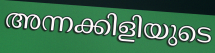
അന്നക്കിളിയുടെ